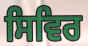
ਸਿਵਿਰ